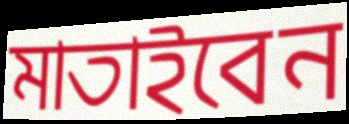
মাতাইবেন